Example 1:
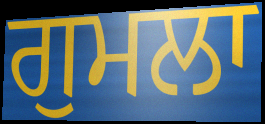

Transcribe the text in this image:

ਗੁਮਲਾ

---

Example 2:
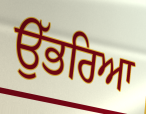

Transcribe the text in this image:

ਉੱਭਰਿਆ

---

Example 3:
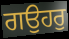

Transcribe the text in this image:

ਗਉਹਰੁ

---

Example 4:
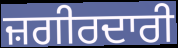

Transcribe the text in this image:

ਜ਼ਗੀਰਦਾਰੀ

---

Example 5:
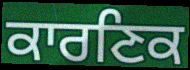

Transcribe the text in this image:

ਕਾਰਣਿਕ